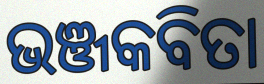
ଭଞ୍ଜକବିତା